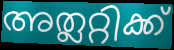
അത്ലറ്റിക്ക്